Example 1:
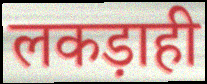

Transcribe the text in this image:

लकड़ाही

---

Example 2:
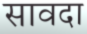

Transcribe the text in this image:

सावदा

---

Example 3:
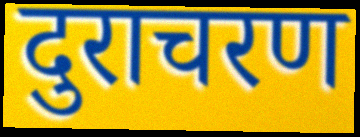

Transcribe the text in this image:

दुराचरण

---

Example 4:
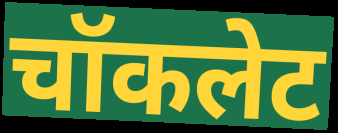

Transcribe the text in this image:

चॉकलेट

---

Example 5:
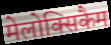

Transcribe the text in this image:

मेलोक्सिकैम